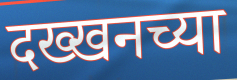
दख्खनच्या